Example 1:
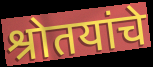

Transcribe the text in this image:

श्रोतयांचे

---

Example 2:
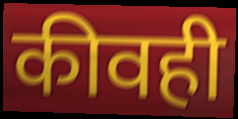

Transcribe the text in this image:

कीवही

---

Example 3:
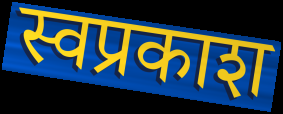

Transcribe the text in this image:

स्वप्रकाश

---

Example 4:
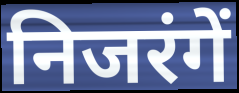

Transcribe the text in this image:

निजरंगें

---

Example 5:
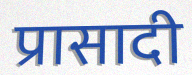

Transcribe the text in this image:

प्रासादी